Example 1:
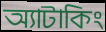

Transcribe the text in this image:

অ্যাটাকিং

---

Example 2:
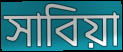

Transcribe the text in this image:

সাবিয়া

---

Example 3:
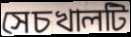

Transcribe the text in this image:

সেচখালটি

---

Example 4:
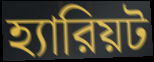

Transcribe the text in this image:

হ্যারিয়ট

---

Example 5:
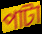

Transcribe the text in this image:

পাটা